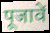
पूजावें